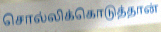
சொல்லிக்கொடுத்தான்